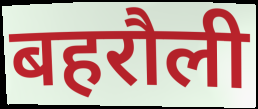
बहरौली